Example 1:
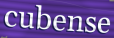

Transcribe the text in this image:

cubense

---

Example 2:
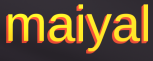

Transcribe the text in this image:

maiyal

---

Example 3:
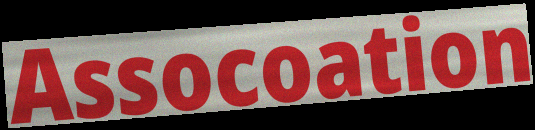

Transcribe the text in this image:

Assocoation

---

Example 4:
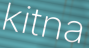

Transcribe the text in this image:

kitna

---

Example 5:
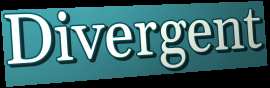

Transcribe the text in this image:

Divergent